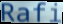
Rafi